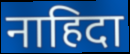
नाहिदा